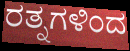
ರತ್ನಗಳಿಂದ